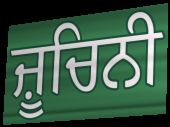
ਜ਼ੂਚਿਨੀ